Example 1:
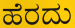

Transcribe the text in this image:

ಹೆರದು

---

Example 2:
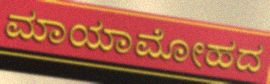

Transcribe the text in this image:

ಮಾಯಾಮೋಹದ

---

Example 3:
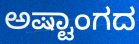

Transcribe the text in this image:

ಅಷ್ಟಾಂಗದ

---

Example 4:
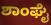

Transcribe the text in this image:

ಶಾಂಘೈ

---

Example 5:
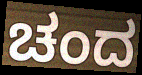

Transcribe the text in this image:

ಚಂದ